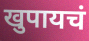
खुपायचं